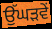
ਉੱਘੜਵੇਂ